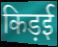
किड़ई